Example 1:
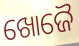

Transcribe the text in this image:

ଖୋଜୈ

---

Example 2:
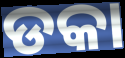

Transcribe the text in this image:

ଡକା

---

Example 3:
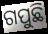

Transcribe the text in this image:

ଗପୁଛି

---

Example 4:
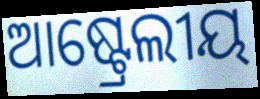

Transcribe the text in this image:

ଆଷ୍ଟ୍ରେଲୀୟ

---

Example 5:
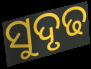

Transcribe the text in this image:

ସୁଦୃଢ